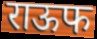
राऊफ